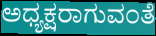
ಅಧ್ಯಕ್ಷರಾಗುವಂತೆ